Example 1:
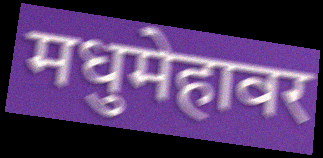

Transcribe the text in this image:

मधुमेहावर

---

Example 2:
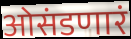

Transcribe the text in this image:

ओसंडणारं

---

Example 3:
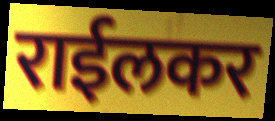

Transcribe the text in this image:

राईलकर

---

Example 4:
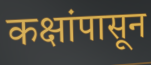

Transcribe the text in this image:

कक्षांपासून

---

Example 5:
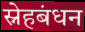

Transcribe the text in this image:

स्नेहबंधन